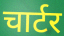
चार्टर